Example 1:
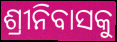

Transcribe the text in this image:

ଶ୍ରୀନିବାସକୁ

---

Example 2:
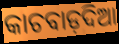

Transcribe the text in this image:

କାଚବାଡ଼ଦିଆ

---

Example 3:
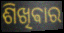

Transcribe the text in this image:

ଶିଖିଵାର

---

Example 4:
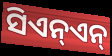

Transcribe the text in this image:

ସିଏନ୍ଏନ୍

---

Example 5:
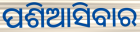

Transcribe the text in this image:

ପଶିଆସିବାର